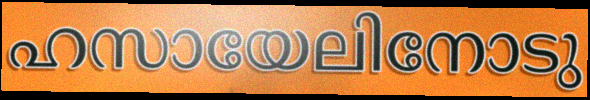
ഹസായേലിനോടു